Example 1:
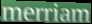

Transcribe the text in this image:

merriam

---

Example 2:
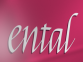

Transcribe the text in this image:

ental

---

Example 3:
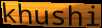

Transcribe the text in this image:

khushi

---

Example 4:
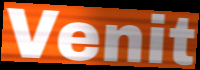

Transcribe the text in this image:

Venit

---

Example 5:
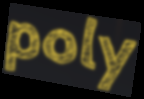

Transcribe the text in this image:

poly